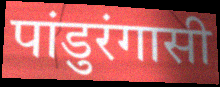
पांडुरंगासी